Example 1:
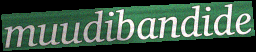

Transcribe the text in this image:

muudibandide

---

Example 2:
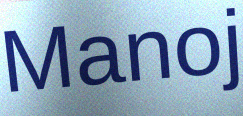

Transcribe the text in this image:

Manoj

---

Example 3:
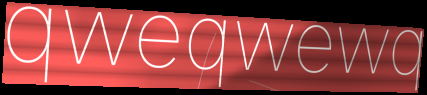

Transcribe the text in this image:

qweqwewq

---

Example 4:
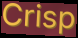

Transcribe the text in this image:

Crisp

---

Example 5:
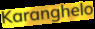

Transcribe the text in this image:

Karanghelo